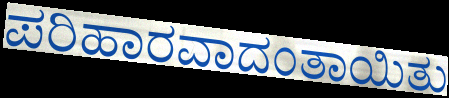
ಪರಿಹಾರವಾದಂತಾಯಿತು